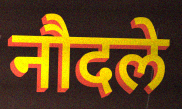
नौदले